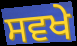
ਸਵਖੇ